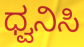
ಧ್ವನಿಸಿ